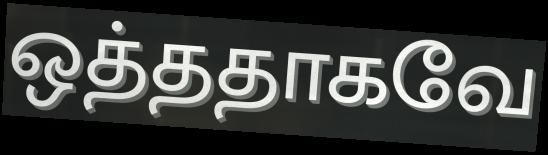
ஒத்ததாகவே